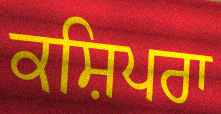
ਕਸ਼ਿਪਰਾ